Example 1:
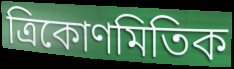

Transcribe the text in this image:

ত্ৰিকোণমিতিক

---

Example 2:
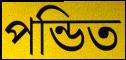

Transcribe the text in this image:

পন্ডিত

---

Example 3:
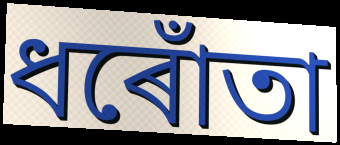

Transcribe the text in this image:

ধৰোঁতা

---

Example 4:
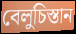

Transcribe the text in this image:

বেলুচিস্তান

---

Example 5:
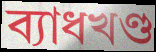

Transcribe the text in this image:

ব্যাধখণ্ড